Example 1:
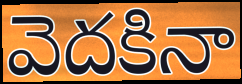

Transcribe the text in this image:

వెదకినా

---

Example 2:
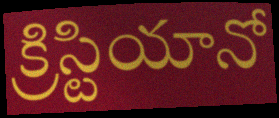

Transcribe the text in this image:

క్రిస్టియానో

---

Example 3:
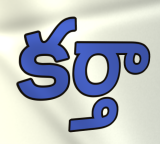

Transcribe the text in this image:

కర్తా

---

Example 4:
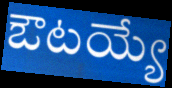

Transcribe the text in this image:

ఔటయ్యే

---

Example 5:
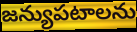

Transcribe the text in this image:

జన్యుపటాలను